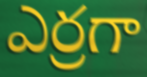
ఎర్రగా